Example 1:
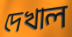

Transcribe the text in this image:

দেখাল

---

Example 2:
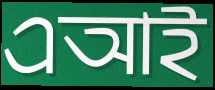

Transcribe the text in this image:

এআই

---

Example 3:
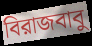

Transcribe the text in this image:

বিরাজবাবু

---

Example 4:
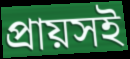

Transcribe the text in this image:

প্রায়সই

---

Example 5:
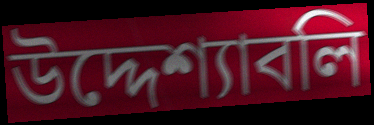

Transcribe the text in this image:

উদ্দেশ্যাবলি